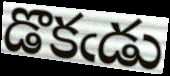
డొకఁడు